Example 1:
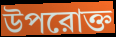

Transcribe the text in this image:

উপরোক্ত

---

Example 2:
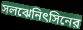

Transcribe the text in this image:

সলঝেনিৎসিনের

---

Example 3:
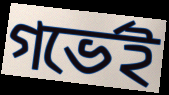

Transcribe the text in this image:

গর্ভেই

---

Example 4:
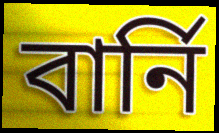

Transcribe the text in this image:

বার্নি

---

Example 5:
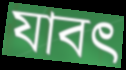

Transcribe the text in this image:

যাবৎ